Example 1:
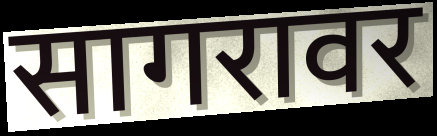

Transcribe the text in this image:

सागरावर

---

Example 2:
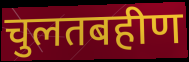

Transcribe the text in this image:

चुलतबहीण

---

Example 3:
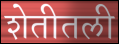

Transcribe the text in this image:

शेतीतली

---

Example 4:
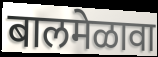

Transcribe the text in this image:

बालमेळावा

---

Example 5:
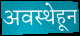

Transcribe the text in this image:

अवस्थेहून